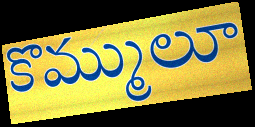
కొమ్ములూ